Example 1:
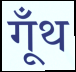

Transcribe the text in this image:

गूँथ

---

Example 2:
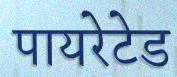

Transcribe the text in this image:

पायरेटेड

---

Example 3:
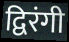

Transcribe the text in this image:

द्विरंगी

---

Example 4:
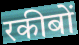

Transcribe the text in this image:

रकीबों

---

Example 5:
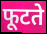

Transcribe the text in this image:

फूटते